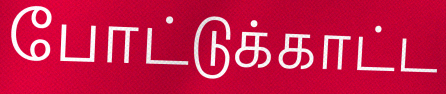
போட்டுக்காட்ட